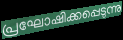
പ്രഘോഷിക്കപ്പെടുന്നു